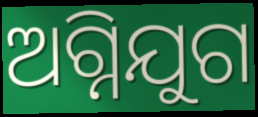
ଅଗ୍ନିଯୁଗ